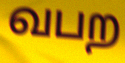
வபற